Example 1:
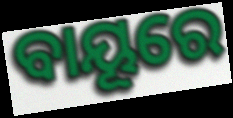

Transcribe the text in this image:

ବାୟୂରେ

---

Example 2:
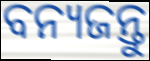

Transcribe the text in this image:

ବନ୍ୟଜନ୍ତୁ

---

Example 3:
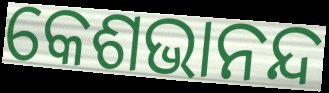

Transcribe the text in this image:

କେଶଭାନନ୍ଦ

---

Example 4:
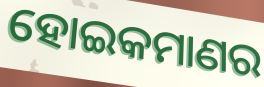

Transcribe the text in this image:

ହୋଇକମାଣର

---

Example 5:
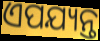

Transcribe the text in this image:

ଏପଯ୍ୟନ୍ତ